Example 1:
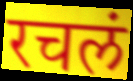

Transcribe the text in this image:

रचलं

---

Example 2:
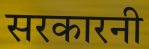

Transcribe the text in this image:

सरकारनी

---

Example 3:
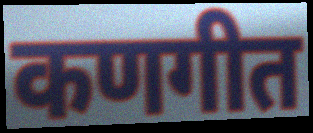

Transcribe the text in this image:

कणगीत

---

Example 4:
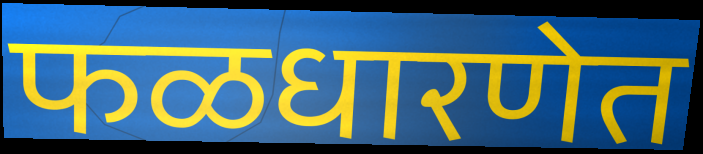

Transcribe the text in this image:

फळधारणेत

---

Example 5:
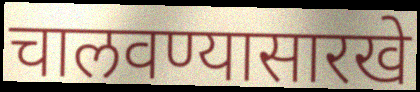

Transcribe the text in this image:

चालवण्यासारखे